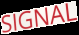
SIGNAL